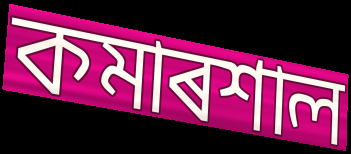
কমাৰশাল